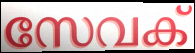
സേവക്